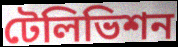
টেলিভিশন